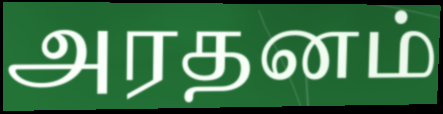
அரதனம்